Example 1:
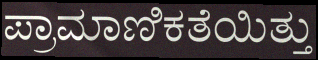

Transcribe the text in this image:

ಪ್ರಾಮಾಣಿಕತೆಯಿತ್ತು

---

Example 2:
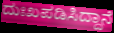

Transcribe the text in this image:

ದುಃಖಪಡಿಸಿದ್ದಾನೆ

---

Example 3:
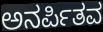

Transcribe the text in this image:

ಅನರ್ಪಿತವ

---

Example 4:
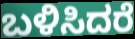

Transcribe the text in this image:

ಬಳಿಸಿದರೆ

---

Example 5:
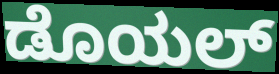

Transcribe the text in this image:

ಡೊಯಲ್